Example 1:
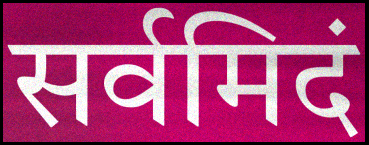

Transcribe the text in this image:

सर्वमिदं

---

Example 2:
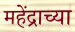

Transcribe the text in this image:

महेंद्राच्या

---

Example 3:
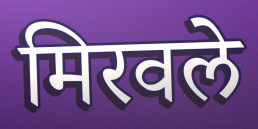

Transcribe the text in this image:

मिरवले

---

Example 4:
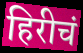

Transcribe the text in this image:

हिरीचं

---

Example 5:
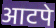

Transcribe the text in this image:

आटपे